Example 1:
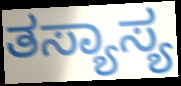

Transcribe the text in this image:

ತಸ್ಯಾಸ್ಯ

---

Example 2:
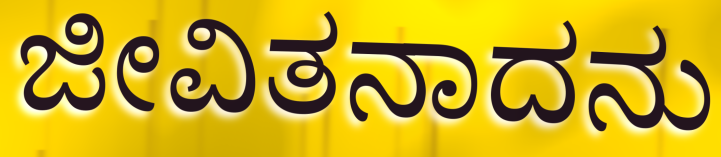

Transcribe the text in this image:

ಜೀವಿತನಾದನು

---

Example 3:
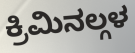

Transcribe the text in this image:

ಕ್ರಿಮಿನಲ್ಗಳ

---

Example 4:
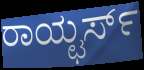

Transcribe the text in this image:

ರಾಯ್ಟರ್ಸ್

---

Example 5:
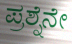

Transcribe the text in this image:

ಪ್ರಶ್ನೆನೇ